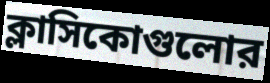
ক্লাসিকোগুলোর